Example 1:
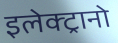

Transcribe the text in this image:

इलेक्ट्रानो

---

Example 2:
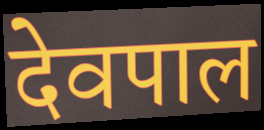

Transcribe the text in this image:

देवपाल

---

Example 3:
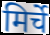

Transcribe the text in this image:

मिर्चे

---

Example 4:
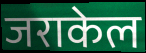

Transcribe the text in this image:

जराकेल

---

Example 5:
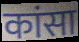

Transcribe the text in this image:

कांसा